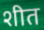
शीत